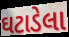
ઘટાડેલા